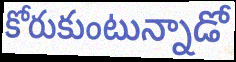
కోరుకుంటున్నాడో